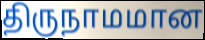
திருநாமமான